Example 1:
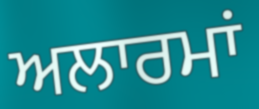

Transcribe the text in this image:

ਅਲਾਰਮਾਂ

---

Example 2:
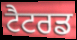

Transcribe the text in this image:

ਟੈਟਰਡ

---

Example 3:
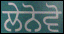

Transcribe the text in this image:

ਲੇਨੋਵੋ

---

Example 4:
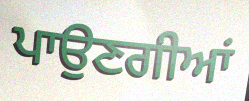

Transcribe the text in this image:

ਪਾਉਣਗੀਆਂ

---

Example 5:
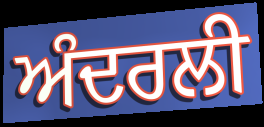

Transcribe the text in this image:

ਅੰਦਰਲੀ